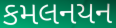
કમલનયન